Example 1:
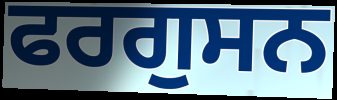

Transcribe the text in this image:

ਫਰਗੁਸਨ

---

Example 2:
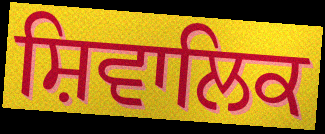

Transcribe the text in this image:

ਸ਼ਿਵਾਲਿਕ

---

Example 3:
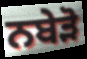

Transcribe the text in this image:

ਨਬੇੜੋ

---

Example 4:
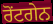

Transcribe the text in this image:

ਰੋਂਟਗੇਨ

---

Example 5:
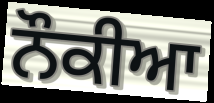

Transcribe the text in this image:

ਨੌਕੀਆ